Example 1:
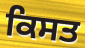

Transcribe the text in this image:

ਕਿਸਤ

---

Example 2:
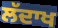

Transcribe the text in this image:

ਲੱਦਾਖ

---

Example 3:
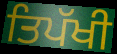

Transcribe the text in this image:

ਤਿਪੱਖੀ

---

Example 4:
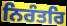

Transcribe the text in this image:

ਨਿਰੰਤਰਿ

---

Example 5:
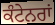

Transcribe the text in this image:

ਕੰਟੇਨਰਾਂ